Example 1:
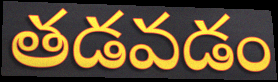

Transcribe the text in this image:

తడవడం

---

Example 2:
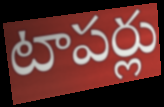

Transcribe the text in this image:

టాపర్లు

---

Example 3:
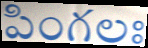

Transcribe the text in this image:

పింగలః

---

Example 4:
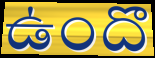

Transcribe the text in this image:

ఉందొ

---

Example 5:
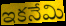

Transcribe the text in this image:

ఇకనేమి